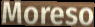
Moreso